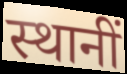
स्थानीं